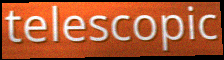
telescopic